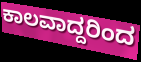
ಕಾಲವಾದ್ದರಿಂದ